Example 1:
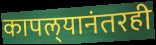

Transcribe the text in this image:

कापल्यानंतरही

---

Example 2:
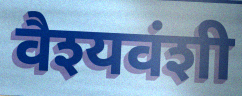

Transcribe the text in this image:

वैश्यवंशी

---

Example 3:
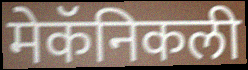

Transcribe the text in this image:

मेकॅनिकली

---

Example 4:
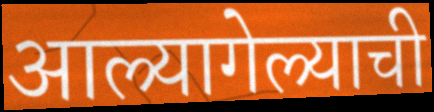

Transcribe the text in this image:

आल्यागेल्याची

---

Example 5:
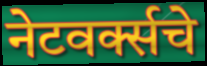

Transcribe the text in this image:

नेटवर्क्सचे